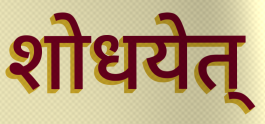
शोधयेत्